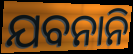
ଯବନାନି